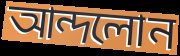
আন্দলোন